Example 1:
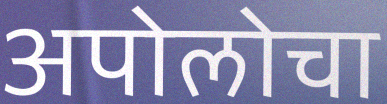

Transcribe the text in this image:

अपोलोचा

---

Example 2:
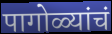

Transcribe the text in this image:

पागोळ्यांचं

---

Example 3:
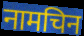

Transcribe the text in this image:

नामचिन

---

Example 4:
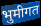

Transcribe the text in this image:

भुमीगत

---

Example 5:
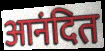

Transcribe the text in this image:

आनंदित